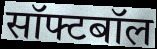
सॉफ्टबॉल